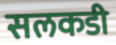
सलकडी